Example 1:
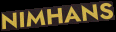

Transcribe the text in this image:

NIMHANS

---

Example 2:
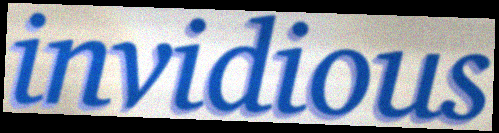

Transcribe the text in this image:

invidious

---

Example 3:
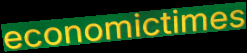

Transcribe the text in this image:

economictimes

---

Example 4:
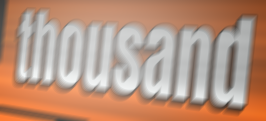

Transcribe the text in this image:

thousand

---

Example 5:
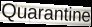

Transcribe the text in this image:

Quarantine